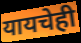
यायचेही